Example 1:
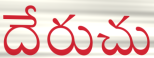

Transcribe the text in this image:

దేరుచు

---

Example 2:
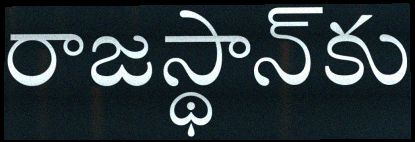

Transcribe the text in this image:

రాజస్థాన్‌కు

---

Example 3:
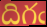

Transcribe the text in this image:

దిగఁ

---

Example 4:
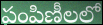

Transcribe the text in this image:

పంపిణీలలో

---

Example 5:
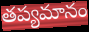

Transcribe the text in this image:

తప్యమానం